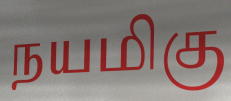
நயமிகு